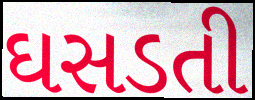
ઘસડતી